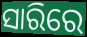
ସାରିରେ